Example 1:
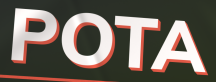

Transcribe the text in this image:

POTA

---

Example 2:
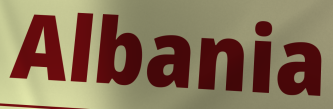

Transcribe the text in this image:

Albania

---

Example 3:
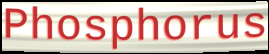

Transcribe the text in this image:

Phosphorus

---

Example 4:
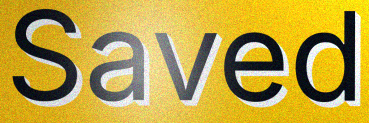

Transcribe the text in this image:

Saved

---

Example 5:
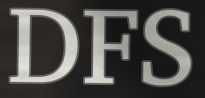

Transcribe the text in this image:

DFS